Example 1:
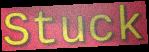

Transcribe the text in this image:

Stuck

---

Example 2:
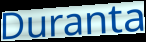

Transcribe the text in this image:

Duranta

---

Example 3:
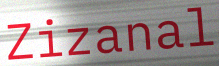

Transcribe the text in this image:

Zizanal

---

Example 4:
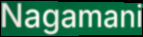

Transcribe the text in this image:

Nagamani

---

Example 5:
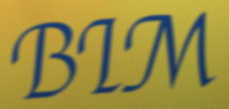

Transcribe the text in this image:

BIM